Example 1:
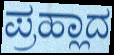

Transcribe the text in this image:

ಪ್ರಹ್ಲಾದ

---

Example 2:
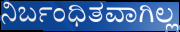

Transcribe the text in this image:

ನಿರ್ಬಂಧಿತವಾಗಿಲ್ಲ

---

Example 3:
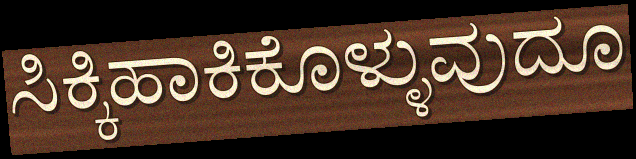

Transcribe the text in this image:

ಸಿಕ್ಕಿಹಾಕಿಕೊಳ್ಳುವುದೂ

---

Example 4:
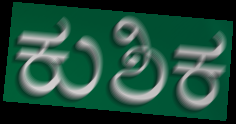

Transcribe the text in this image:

ಕುಶಿಕ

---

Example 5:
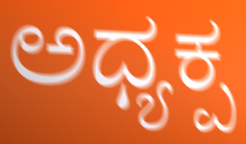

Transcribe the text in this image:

ಅಧ್ಯಕ್ಪ